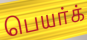
பெயர்க்